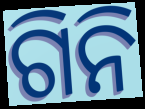
ଗିନି